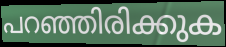
പറഞ്ഞിരിക്കുക